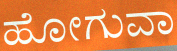
ಹೋಗುವಾ